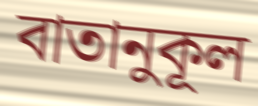
বাতানুকূল